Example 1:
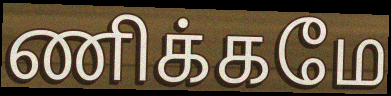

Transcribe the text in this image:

ணிக்கமே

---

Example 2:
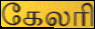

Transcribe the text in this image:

கேலரி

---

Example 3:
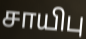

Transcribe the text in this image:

சாயிபு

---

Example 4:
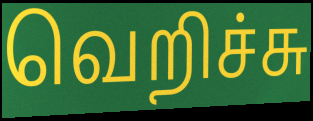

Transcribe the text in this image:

வெறிச்சு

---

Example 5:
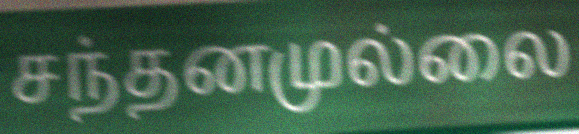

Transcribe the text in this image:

சந்தனமுல்லை